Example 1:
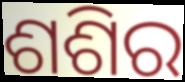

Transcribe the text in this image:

ଶଶିର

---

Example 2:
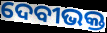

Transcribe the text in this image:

ଦେବୀଭକ୍ତ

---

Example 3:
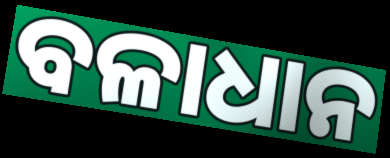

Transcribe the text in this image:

ବଳାଧାନ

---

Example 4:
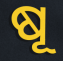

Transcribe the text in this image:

ଷୂ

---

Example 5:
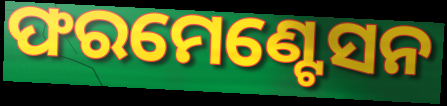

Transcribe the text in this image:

ଫରମେଣ୍ଟେସନ